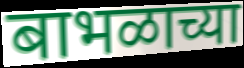
बाभळाच्या